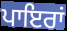
ਪਾਇਰਾਂ